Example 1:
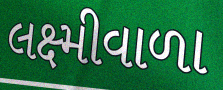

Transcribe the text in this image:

લક્ષ્મીવાળા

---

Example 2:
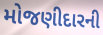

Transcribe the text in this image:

મોજણીદારની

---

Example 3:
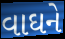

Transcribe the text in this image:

વાઘને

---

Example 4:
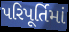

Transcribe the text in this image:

પરિપૂર્તિમાં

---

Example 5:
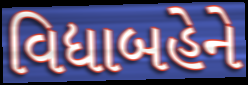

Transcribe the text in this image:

વિદ્યાબહેને